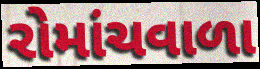
રોમાંચવાળા